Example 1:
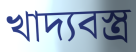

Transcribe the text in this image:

খাদ্যবস্ত্র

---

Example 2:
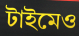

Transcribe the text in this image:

টাইমেও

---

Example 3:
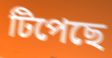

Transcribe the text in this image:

টিপেছে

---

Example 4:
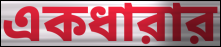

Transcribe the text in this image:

একধারার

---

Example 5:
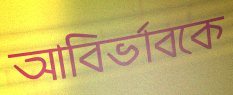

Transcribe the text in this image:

আবির্ভাবকে